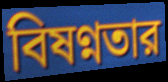
বিষণ্নতার